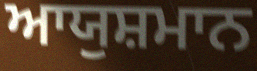
ਆਯੁਸ਼ਮਾਨ